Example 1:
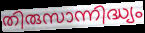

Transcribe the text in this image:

തിരുസാന്നിദ്ധ്യം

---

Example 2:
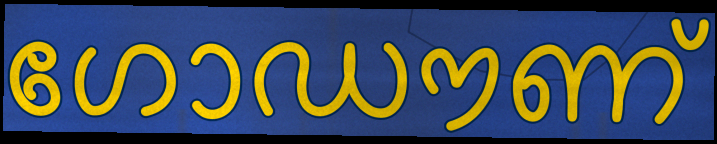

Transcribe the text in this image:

ഗോഡൗണ്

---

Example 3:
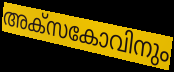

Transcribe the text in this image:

അക്സകോവിനും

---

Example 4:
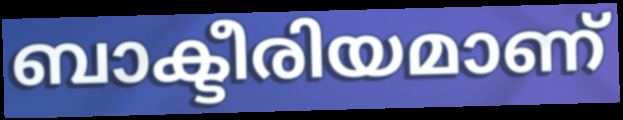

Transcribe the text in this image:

ബാക്ടീരിയമാണ്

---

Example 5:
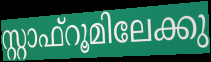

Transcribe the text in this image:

സ്റ്റാഫ്റൂമിലേക്കു